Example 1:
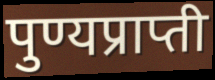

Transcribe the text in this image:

पुण्यप्राप्ती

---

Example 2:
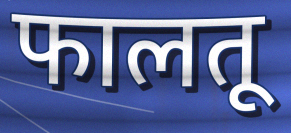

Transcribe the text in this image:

फालतू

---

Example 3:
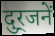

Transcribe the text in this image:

दुर्जनें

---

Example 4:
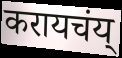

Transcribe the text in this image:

करायचंय्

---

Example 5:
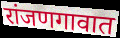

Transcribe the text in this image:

रांजणगावात